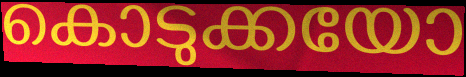
കൊടുക്കയോ